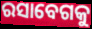
ରସାବେଗକୁ